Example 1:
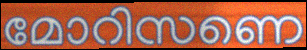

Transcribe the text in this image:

മോറിസണെ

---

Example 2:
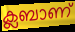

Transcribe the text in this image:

ക്ലബാണ്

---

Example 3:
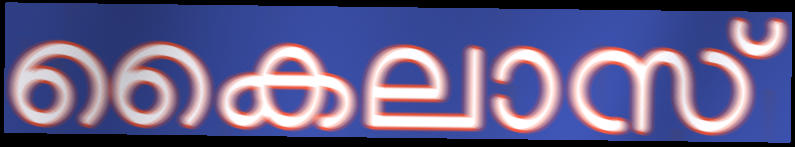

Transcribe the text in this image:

കൈലാസ്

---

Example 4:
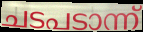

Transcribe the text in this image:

ചടപടാന്ന്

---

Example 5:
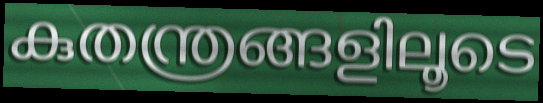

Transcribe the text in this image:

കുതന്ത്രങ്ങളിലൂടെ